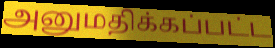
அனுமதிக்கப்பட்ட